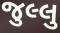
જુલ્લુ